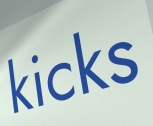
kicks